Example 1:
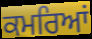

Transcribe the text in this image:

ਕਮਰਿਆਂ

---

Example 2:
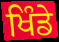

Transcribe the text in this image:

ਖਿੰਡੇ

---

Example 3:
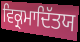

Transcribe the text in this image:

ਵਿਕ੍ਰਮਾਦਿੱਤਯ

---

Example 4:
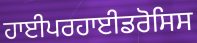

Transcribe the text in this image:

ਹਾਈਪਰਹਾਈਡਰੋਸਿਸ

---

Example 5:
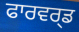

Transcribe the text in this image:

ਫਾਰਵਰ੍ਡ